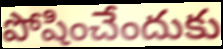
పోషించేందుకు